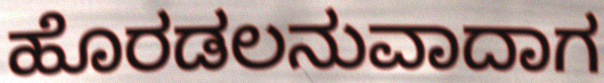
ಹೊರಡಲನುವಾದಾಗ